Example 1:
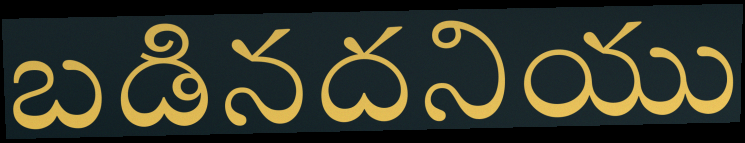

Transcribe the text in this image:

బడినదనియు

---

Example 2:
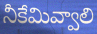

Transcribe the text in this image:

నీకేమివ్వాలి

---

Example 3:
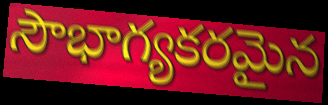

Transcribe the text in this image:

సౌభాగ్యకరమైన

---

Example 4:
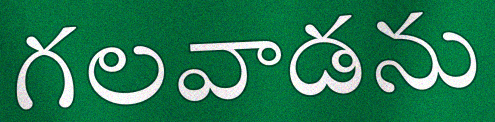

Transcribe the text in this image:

గలవాడను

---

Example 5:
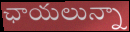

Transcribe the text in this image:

ఛాయలున్నా